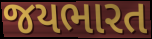
જયભારત